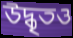
উদ্ধৃতও